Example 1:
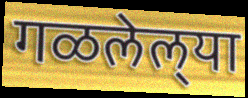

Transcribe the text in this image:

गळलेल्या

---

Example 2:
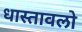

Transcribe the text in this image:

धास्तावलो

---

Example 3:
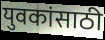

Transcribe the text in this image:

युवकांसाठी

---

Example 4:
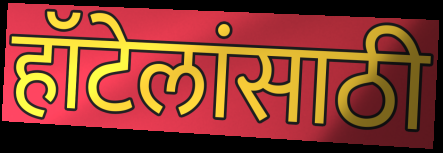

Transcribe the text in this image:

हॉटेलांसाठी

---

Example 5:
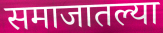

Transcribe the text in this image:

समाजातल्‍या